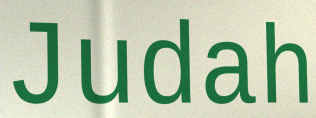
Judah